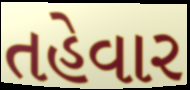
તહેવાર